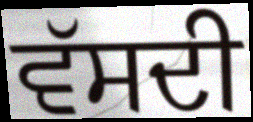
ਵੱਸਦੀ